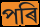
পৰি